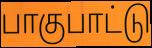
பாகுபாட்டு